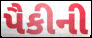
પૈકીની